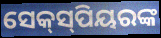
ସେକ୍‌ସ୍‌ପିୟରଙ୍କ